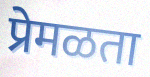
प्रेमळता